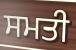
ਸਮਤੀ